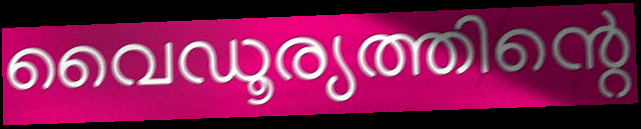
വൈഡൂര്യത്തിന്റെ